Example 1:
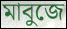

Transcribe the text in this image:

মাবুজে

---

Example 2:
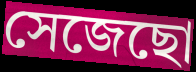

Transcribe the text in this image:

সেজেছো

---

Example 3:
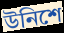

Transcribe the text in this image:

উনিশে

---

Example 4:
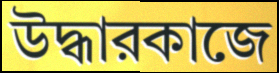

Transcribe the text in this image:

উদ্ধারকাজে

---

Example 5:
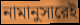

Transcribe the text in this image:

নামানুসারেই